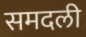
समदली